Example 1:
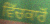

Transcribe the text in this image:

ਵਿੱਚਕਾਰੋਂ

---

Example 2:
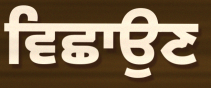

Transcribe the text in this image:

ਵਿਛਾਉਣ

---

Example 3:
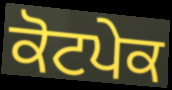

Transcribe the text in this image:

ਕੋਟਪੇਕ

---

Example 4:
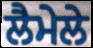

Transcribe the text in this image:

ਲੈਮੇਲੇ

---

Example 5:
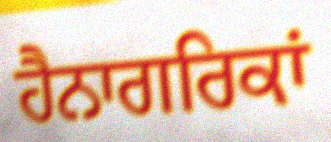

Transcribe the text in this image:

ਹੈਨਾਗਰਿਕਾਂ